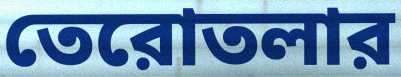
তেরোতলার